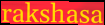
rakshasa